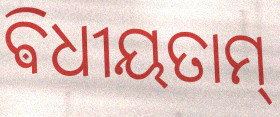
ଵିଧୀୟତାମ୍